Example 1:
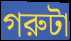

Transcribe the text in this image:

গরুটা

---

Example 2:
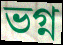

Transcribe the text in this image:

ভগ্ন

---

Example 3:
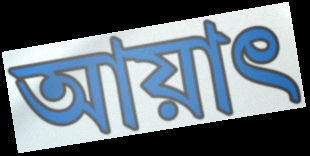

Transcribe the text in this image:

আয়াৎ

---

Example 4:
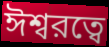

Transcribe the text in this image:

ঈশ্বরত্বে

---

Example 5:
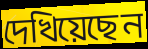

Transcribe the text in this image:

দেখিয়েছেন